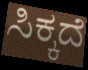
ಸಿಕ್ಕದೆ